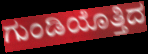
ಗುಂಡಿಯೊತ್ತಿದ